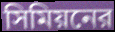
সিমিয়নের